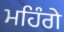
ਮਹਿੰਗੇ